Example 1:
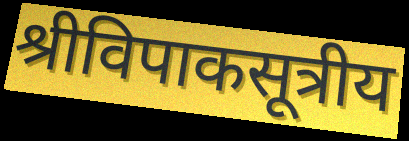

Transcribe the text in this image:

श्रीविपाकसूत्रीय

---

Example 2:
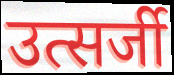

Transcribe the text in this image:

उत्सर्जी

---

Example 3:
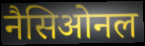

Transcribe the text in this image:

नैसिओनल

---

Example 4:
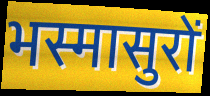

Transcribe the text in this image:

भस्मासुरों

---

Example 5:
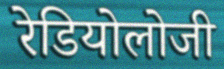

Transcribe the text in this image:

रेडियोलोजी